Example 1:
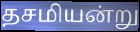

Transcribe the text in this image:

தசமியன்று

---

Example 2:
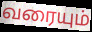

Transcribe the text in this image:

வரையும்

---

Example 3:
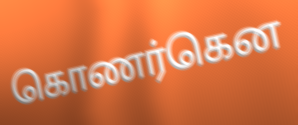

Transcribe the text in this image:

கொணர்கென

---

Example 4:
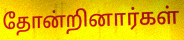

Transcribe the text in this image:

தோன்றினார்கள்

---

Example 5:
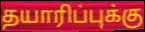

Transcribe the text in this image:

தயாரிப்புக்கு